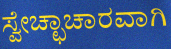
ಸ್ವೇಚ್ಛಾಚಾರವಾಗಿ